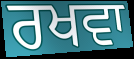
ਰਖਵਾ